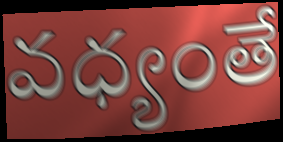
వధ్యంతే